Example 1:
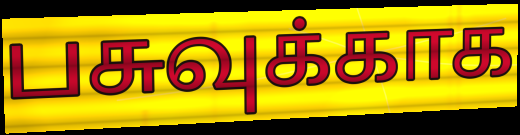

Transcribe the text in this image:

பசுவுக்காக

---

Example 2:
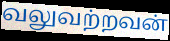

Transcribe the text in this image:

வலுவற்றவன்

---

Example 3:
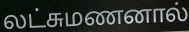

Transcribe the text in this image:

லட்சுமணனால்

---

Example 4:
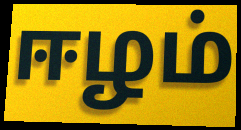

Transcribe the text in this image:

ஈழம்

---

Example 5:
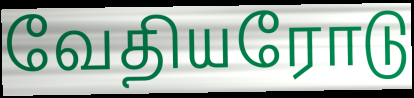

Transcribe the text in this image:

வேதியரோடு